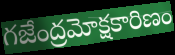
గజేంద్రమోక్షకారిణం